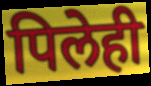
पिलेही